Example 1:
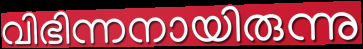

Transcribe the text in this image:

വിഭിന്നനായിരുന്നു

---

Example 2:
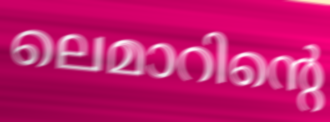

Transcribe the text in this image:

ലെമാറിന്റെ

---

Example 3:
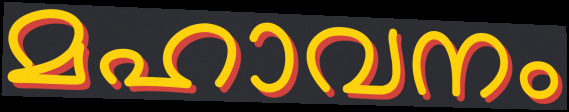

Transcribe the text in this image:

മഹാവനം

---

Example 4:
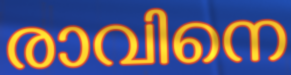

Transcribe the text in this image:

രാവിനെ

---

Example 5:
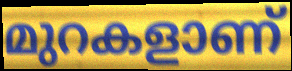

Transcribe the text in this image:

മുറകളാണ്